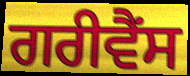
ਗਰੀਵੈਂਸ